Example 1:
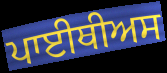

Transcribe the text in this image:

ਪਾਈਥੀਅਸ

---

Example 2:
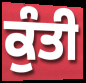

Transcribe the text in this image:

ਕੁੰਤੀ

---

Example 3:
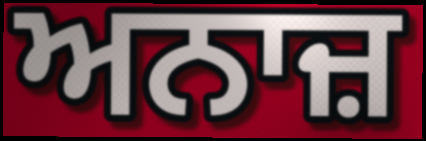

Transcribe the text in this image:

ਅਨਾਜ਼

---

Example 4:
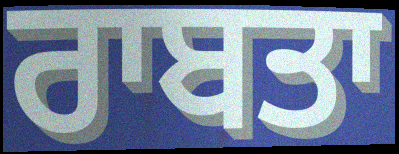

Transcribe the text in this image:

ਰਾਬਤਾ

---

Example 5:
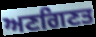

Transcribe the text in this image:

ਅਣਗਿਣਤ